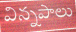
విన్నపాలు